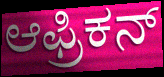
ಆಫ್ರಿಕನ್